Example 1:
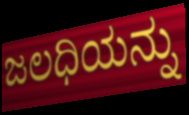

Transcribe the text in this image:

ಜಲಧಿಯನ್ನು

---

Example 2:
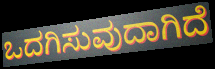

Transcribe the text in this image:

ಒದಗಿಸುವುದಾಗಿದೆ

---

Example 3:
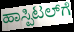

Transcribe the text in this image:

ಹಾಸ್ಪಿಟಲ್‌ಗೆ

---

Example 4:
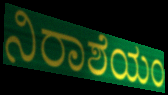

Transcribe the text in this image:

ನಿರಾಶೆಯಂ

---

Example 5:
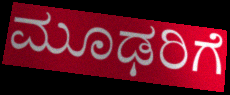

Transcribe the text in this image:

ಮೂಢರಿಗೆ